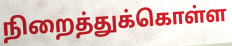
நிறைத்துக்கொள்ள